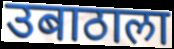
उबाठाला